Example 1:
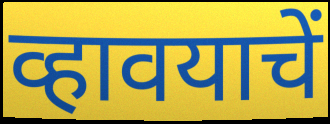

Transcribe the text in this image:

व्हावयाचें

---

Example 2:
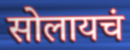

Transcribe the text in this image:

सोलायचं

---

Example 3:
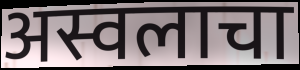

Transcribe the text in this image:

अस्वलाचा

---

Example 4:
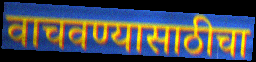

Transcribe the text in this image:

वाचवण्यासाठीचा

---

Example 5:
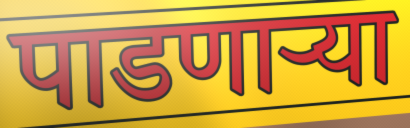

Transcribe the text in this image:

पाडणाऱ्या